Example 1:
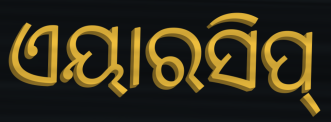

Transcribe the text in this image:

ଏୟାରସିପ୍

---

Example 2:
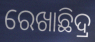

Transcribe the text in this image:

ରେଖାଛିଦ୍ର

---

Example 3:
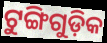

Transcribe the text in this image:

ଟୁଙ୍ଗିଗୁଡ଼ିକ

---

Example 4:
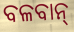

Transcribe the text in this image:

ବଳବାନ୍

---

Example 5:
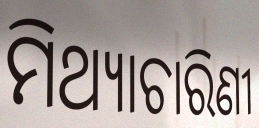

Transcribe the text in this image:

ମିଥ୍ୟାଚାରିଣୀ